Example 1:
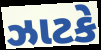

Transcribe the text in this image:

ઝાટકે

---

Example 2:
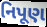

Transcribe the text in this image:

નિપૂણ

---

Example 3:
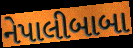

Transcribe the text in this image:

નેપાલીબાબા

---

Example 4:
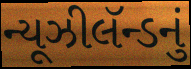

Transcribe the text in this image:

ન્યૂઝીલૅન્ડનું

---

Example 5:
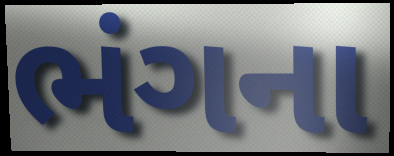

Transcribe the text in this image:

ભંગના